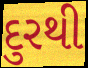
દુરથી